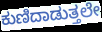
ಕುಣಿದಾಡುತ್ತಲೇ